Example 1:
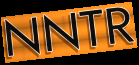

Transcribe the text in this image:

NNTR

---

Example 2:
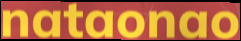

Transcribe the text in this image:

nataonao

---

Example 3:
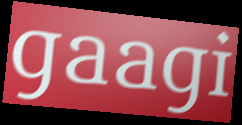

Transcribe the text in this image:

gaagi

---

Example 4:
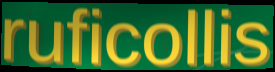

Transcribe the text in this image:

ruficollis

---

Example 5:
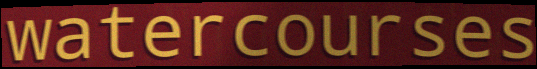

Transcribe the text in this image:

watercourses